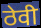
ठेवी